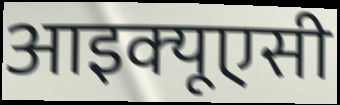
आइक्यूएसी